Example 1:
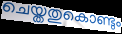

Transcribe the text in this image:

ചെയ്തതുകൊണ്ടും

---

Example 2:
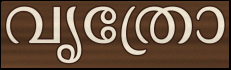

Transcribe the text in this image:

വൃത്രോ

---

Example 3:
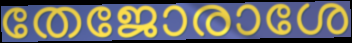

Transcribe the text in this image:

തേജോരാശേ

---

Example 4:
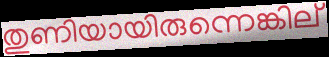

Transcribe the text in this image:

തുണിയായിരുന്നെങ്കില്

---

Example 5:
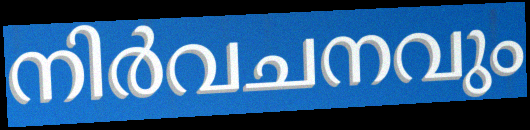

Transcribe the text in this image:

നിർവചനവും